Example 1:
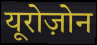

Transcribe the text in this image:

यूरोज़ोन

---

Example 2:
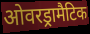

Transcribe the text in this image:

ओवरड्रामैटिक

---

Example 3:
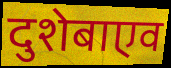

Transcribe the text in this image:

दुशेबाएव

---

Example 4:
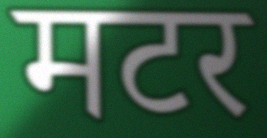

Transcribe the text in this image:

मटर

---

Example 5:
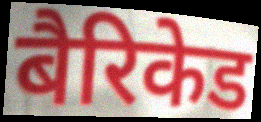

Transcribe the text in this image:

बैरिकेड